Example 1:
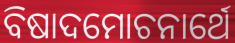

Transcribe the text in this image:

ବିଷାଦମୋଚନାର୍ଥେ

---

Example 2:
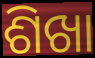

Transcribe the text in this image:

ଶିଖା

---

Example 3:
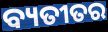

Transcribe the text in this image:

ବ୍ୟତୀତର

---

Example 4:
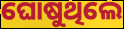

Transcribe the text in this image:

ଘୋଷୁଥିଲେ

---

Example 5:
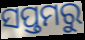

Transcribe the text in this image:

ସପ୍ତମରୁ